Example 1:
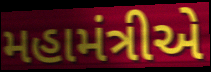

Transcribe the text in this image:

મહામંત્રીએ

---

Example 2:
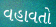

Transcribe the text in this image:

વહાવતો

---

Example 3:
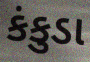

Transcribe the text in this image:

કંકુડા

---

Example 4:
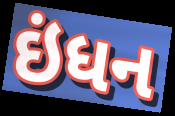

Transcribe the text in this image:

ઇંધન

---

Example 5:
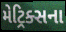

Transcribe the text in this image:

મેટ્રિક્સના